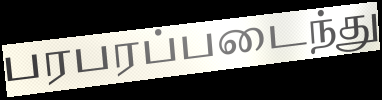
பரபரப்படைந்து